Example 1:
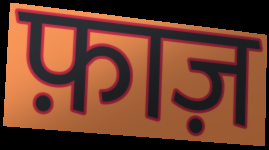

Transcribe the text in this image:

फ़ाज़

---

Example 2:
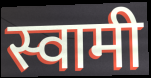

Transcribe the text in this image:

स्‍वामी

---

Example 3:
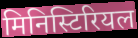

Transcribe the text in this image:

मिनिस्टिरियल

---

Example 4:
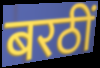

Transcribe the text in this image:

बरठीं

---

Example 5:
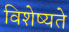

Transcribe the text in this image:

विशेष्यते